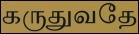
கருதுவதே